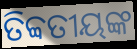
ତିବ୍ବତୀୟଙ୍କ